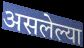
असलेल्या